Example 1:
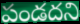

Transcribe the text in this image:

పండదని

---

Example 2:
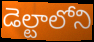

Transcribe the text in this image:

డెల్టాలోని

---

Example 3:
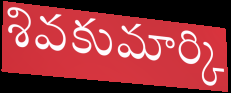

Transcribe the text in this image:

శివకుమార్కి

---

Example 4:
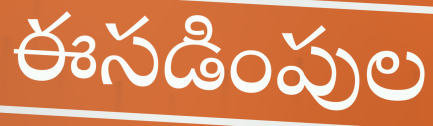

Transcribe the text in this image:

ఈసడింపుల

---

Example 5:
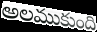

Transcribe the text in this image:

అలముకుంది